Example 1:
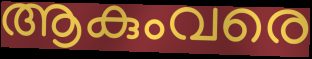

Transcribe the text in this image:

ആകുംവരെ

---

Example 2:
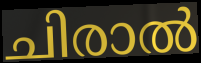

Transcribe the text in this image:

ചിരാൽ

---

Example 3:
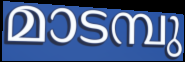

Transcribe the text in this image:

മാടമ്പു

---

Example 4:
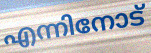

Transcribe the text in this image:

എന്നിനോട്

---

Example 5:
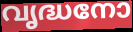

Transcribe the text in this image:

വൃദ്ധനോ